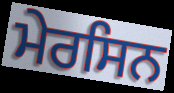
ਮੇਰਸਿਨ